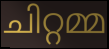
ചിറ്റമ്മ